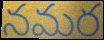
నమర